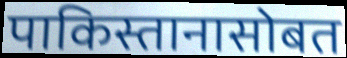
पाकिस्तानासोबत